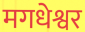
मगधेश्वर